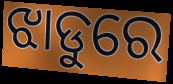
ଝାଡୁରେ